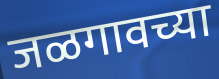
जळगावच्या